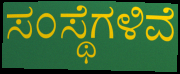
ಸಂಸ್ಥೆಗಳಿವೆ